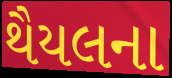
થૈયલના